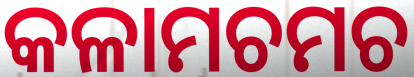
କଳାମଚମଚ